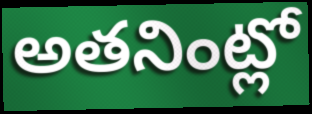
అతనింట్లో